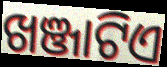
ଖଞ୍ଜାଟିଏ